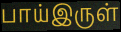
பாய்இருள்